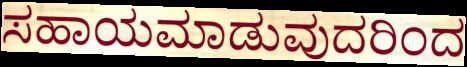
ಸಹಾಯಮಾಡುವುದರಿಂದ